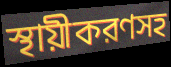
স্থায়ীকরণসহ